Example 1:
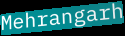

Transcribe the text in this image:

Mehrangarh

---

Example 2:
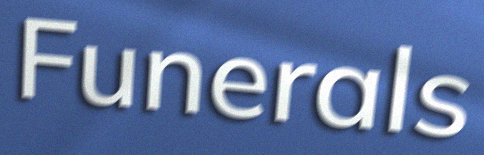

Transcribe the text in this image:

Funerals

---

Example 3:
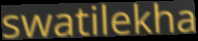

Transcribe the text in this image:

swatilekha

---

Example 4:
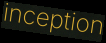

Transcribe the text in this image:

inception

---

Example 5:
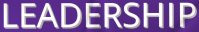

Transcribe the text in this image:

LEADERSHIP